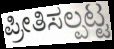
ಪ್ರೀತಿಸಲ್ಪಟ್ಟ